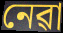
নেৱা